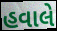
હવાલે